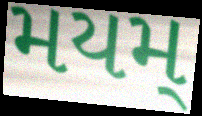
મયમ્